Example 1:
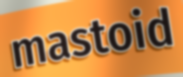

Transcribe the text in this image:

mastoid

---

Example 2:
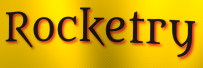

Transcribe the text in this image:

Rocketry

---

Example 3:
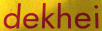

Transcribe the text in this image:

dekhei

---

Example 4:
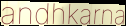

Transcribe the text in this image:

andhkarna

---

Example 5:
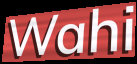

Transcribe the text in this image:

Wahi